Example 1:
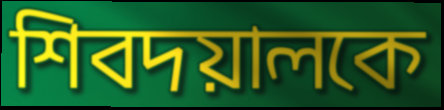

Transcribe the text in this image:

শিবদয়ালকে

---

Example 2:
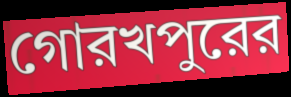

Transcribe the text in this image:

গোরখপুরের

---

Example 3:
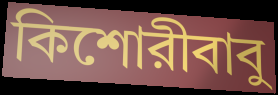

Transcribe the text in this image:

কিশোরীবাবু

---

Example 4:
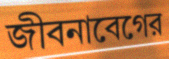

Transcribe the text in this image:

জীবনাবেগের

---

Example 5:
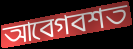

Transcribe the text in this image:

আবেগবশত